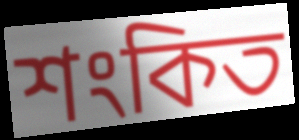
শংকিত